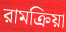
রামক্রিয়া